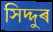
সিদ্দুৰ